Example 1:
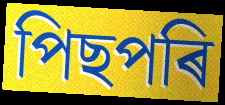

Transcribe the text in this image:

পিছপৰি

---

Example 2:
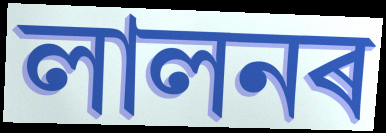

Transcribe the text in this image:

লালনৰ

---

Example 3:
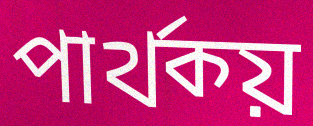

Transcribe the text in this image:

পাৰ্থক্য়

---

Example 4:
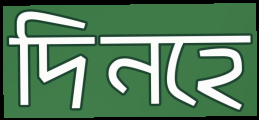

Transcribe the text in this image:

দিনহে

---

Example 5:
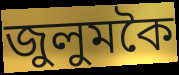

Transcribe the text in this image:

জুলুমকৈ